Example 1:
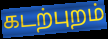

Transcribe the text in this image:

கடற்புறம்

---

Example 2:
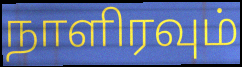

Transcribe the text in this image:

நாளிரவும்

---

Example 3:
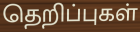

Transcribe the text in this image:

தெறிப்புகள்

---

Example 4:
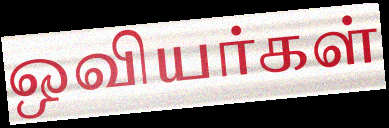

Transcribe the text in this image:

ஒவியர்கள்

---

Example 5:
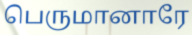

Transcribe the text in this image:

பெருமானாரே